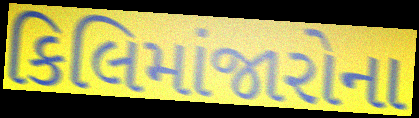
કિલિમાંજારોના